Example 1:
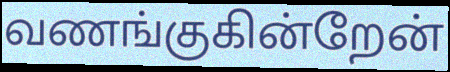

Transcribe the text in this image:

வணங்குகின்றேன்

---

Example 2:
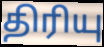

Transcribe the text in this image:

திரியு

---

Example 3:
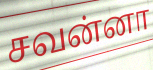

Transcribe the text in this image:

சவன்னா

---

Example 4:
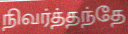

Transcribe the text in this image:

நிவர்த்தந்தே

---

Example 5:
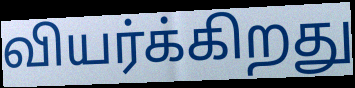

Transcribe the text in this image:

வியர்க்கிறது